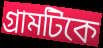
গ্রামটিকে